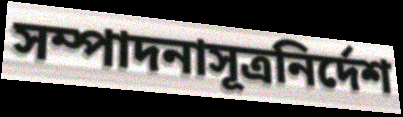
সম্পাদনাসূত্রনির্দেশ